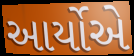
આર્યોએ